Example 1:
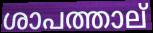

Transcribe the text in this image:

ശാപത്താല്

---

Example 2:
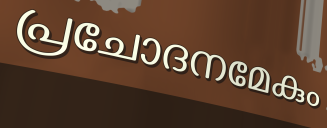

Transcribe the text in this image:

പ്രചോദനമേകും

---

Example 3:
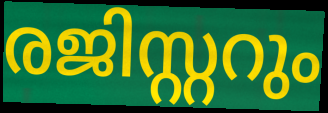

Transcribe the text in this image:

രജിസ്റ്ററും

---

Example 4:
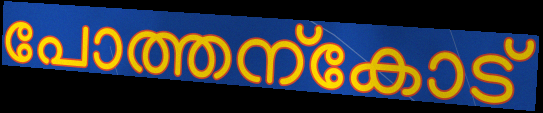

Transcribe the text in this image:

പോത്തന്കോട്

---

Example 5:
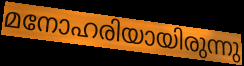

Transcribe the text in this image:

മനോഹരിയായിരുന്നു